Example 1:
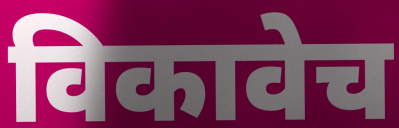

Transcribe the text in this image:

विकावेच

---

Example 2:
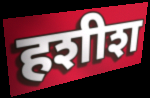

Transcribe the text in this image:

हशीश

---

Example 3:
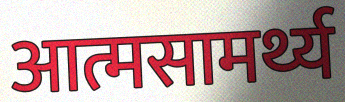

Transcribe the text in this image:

आत्मसामर्थ्य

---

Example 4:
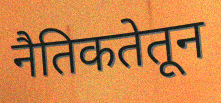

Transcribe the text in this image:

नैतिकतेतून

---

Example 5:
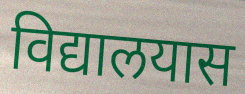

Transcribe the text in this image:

विद्यालयास